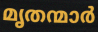
മൃതന്മാർ